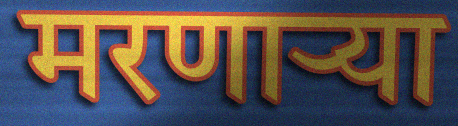
मरणार्‍या